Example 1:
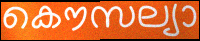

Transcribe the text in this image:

കൌസല്യാ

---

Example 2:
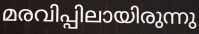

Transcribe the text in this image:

മരവിപ്പിലായിരുന്നു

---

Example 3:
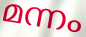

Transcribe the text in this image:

മന്നം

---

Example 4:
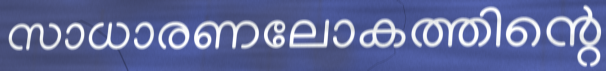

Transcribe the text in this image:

സാധാരണലോകത്തിന്റെ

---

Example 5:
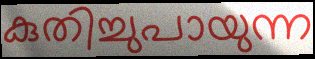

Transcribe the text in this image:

കുതിച്ചുപായുന്ന